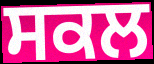
ਸਕਲ